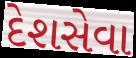
દેશસેવા